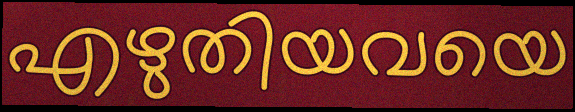
എഴുതിയവയെ